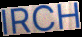
IRCH